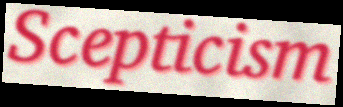
Scepticism